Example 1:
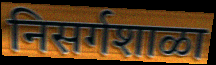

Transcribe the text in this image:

निसर्गशाळा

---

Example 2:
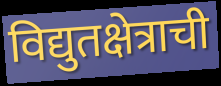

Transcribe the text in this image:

विद्युतक्षेत्राची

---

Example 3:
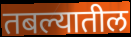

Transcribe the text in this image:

तबल्यातील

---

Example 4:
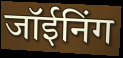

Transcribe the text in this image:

जॉईनिंग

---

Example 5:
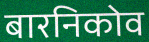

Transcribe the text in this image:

बारनिकोव